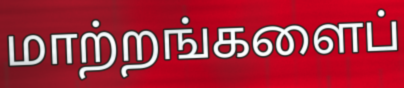
மாற்றங்களைப்